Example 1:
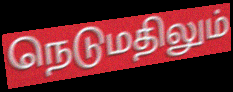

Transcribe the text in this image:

நெடுமதிலும்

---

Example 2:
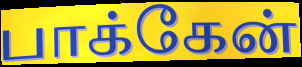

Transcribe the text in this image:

பாக்கேன்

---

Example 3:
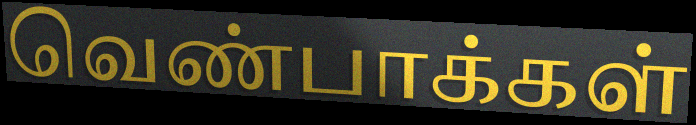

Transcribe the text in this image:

வெண்பாக்கள்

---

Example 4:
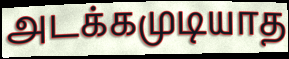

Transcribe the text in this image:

அடக்கமுடியாத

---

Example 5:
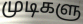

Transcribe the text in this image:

முடிகளு